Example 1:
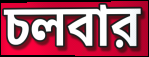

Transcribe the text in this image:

চলবার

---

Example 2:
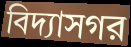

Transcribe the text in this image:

বিদ্যাসগর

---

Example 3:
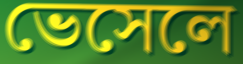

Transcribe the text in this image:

ভেসেলে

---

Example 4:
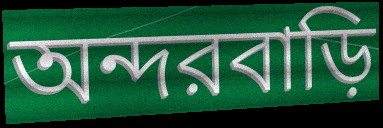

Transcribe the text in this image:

অন্দরবাড়ি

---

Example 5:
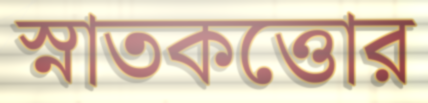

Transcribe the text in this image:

স্নাতকত্তোর